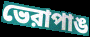
ভেরাপাঙ